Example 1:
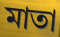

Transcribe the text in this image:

মাতা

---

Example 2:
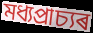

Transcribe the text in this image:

মধ্যপ্ৰাচ্যৰ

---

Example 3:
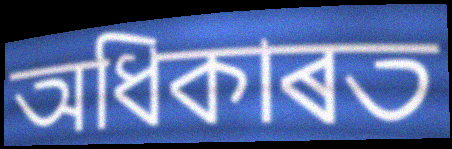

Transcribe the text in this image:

অধিকাৰত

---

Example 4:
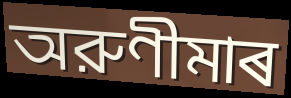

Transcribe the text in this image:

অৰুণীমাৰ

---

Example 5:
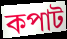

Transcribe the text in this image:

কপাট